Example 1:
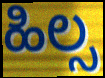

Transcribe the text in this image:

ಹಿಲ್ಸ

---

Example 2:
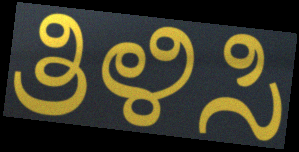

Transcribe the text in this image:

ತಿಳಿಸಿ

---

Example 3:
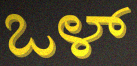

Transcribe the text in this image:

ಒಳ್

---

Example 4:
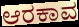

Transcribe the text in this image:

ಆರಕಾವ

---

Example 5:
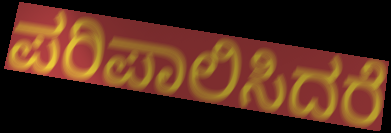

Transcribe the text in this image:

ಪರಿಪಾಲಿಸಿದರೆ